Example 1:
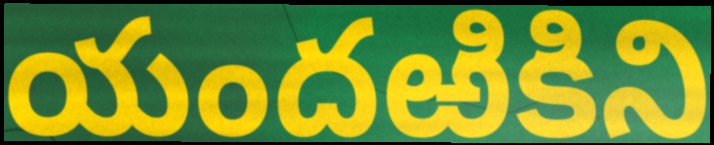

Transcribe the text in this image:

యందఱికిని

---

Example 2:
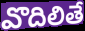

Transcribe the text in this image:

వొదిలితే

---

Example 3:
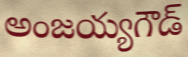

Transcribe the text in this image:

అంజయ్యగౌడ్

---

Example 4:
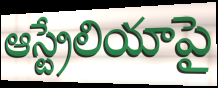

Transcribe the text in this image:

ఆస్ట్రేలియాపై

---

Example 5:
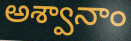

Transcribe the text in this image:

అశ్వానాం